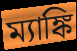
ম্যাঙ্কি